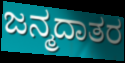
ಜನ್ಮದಾತರ